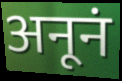
अनूनं